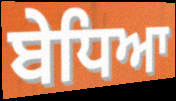
ਬੇਧਿਆ